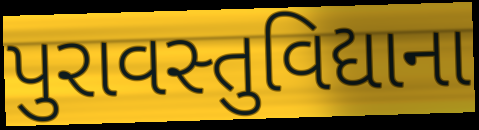
પુરાવસ્તુવિદ્યાના